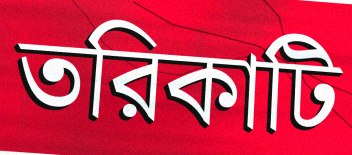
তরিকাটি